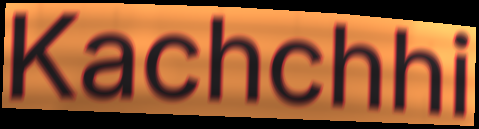
Kachchhi